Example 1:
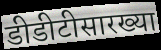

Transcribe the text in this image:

डीडीटीसारख्या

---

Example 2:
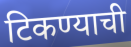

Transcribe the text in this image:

टिकण्याची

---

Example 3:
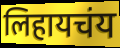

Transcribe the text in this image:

लिहायचंय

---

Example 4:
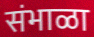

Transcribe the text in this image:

संभाळा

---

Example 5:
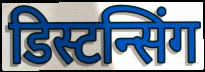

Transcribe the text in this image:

डिस्टन्सिंग